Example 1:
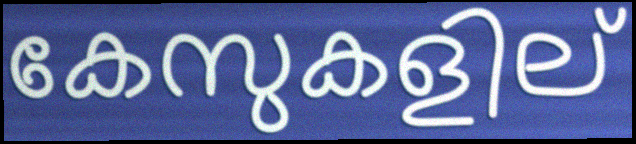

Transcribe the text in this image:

കേസുകളില്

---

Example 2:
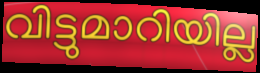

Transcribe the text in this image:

വിട്ടുമാറിയില്ല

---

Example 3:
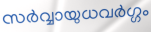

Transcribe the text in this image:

സർവ്വായുധവർഗ്ഗം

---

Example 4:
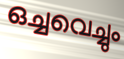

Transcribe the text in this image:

ഒച്ചവെച്ചും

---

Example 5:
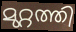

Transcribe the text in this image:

മുറ്റത്തി